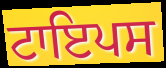
ਟਾਇਪਸ